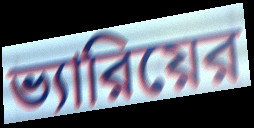
ভ্যারিয়ের